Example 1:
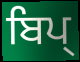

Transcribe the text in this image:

ਬਿਪ੍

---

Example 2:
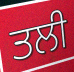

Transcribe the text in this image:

ਤਲੀ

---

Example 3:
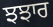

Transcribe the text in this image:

ਝਝਾਰ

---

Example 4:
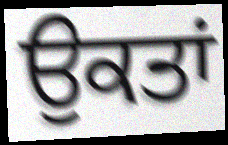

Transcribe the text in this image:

ਉਕਤਾਂ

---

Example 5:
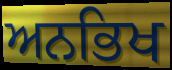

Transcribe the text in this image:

ਅਨਭਿਖ